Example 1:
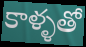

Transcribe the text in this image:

కాళ్ళతో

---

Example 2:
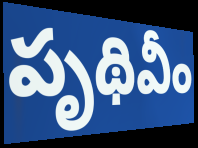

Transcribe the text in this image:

పృథివీం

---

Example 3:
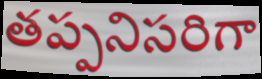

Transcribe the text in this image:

తప్పనిసరిగా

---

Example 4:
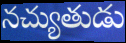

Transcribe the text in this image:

నచ్యుతుడు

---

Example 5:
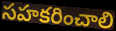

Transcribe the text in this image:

సహకరించాలి